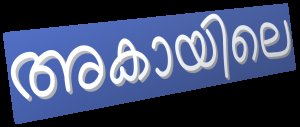
അകായിലെ